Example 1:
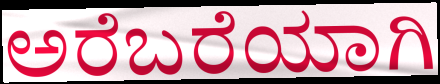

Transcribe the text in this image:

ಅರೆಬರೆಯಾಗಿ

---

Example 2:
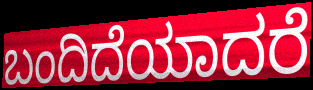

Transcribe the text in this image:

ಬಂದಿದೆಯಾದರೆ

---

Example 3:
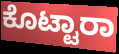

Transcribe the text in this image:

ಕೊಟ್ಟಾರಾ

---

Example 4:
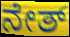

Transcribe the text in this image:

ನೇತ್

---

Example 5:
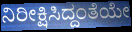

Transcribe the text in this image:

ನಿರೀಕ್ಷಿಸಿದ್ದಂತೆಯೇ